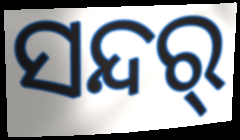
ସନ୍ଦର୍